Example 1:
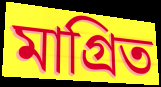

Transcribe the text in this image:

মাগ্রিত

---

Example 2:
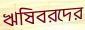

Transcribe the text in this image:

ঋষিবরদের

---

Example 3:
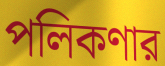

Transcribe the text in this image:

পলিকণার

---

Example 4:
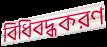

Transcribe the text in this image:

বিধিবদ্ধকরণ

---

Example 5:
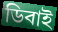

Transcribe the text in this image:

ডিবাই